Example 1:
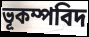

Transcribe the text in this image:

ভূকম্পবিদ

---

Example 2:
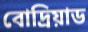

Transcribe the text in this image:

বোদ্রিয়াড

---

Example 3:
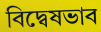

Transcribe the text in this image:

বিদ্বেষভাব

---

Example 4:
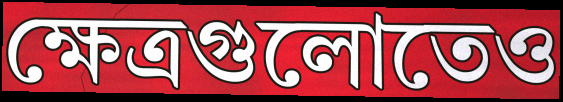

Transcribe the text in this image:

ক্ষেত্রগুলোতেও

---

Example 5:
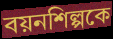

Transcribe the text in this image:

বয়নশিল্পকে